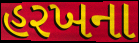
હરખના